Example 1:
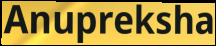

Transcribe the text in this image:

Anupreksha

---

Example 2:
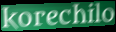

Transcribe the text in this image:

korechilo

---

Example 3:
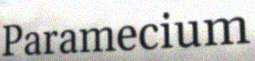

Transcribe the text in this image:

Paramecium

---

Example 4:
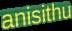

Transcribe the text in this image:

anisithu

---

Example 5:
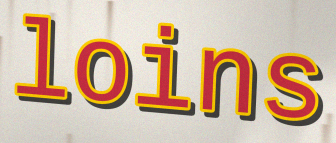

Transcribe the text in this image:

loins